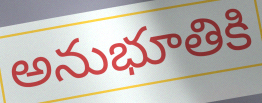
అనుభూతికి